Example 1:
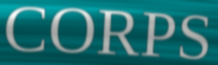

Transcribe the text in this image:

CORPS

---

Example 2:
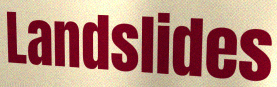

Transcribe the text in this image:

Landslides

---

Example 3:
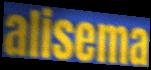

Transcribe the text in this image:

alisema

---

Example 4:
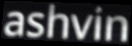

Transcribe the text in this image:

ashvin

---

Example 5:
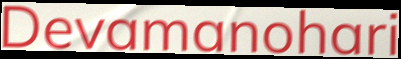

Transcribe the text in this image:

Devamanohari